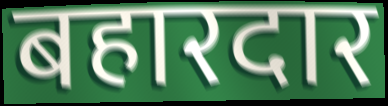
बहारदार